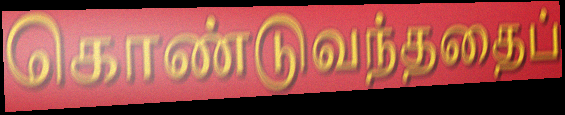
கொண்டுவந்ததைப்